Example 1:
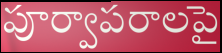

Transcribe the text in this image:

పూర్వాపరాలపై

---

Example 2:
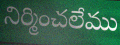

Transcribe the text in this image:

నిర్మించలేము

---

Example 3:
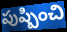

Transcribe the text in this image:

పుష్పించి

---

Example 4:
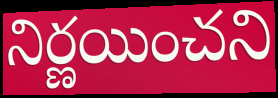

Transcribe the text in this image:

నిర్ణయించని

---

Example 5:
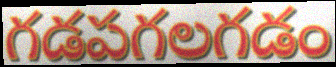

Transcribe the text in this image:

గడపగలగడం